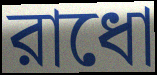
রাধো